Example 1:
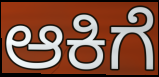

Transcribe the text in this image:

ಆಕಿಗೆ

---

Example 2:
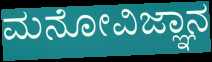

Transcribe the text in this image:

ಮನೋವಿಜ್ಞಾನ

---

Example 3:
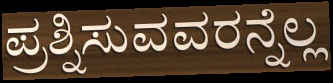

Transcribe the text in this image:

ಪ್ರಶ್ನಿಸುವವರನ್ನೆಲ್ಲ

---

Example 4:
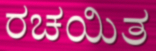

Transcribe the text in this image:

ರಚಯಿತ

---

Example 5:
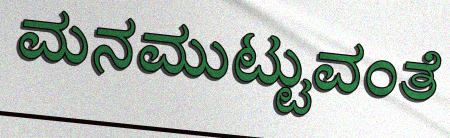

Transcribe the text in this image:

ಮನಮುಟ್ಟುವಂತೆ